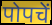
पोपचें